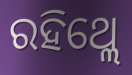
ରହିଥ୍ଲେ